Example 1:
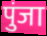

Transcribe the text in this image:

पुंजा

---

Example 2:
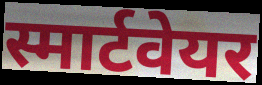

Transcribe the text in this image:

स्मार्टवेयर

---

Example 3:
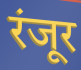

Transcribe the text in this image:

रंजूर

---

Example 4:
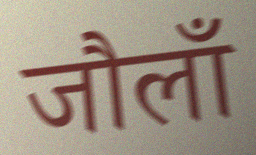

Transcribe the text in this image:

जौलाँ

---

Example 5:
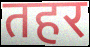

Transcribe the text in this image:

तहर